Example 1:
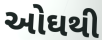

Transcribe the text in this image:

ઓઘથી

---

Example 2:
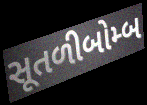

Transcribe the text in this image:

સૂતળીબોમ્બ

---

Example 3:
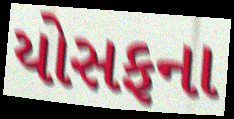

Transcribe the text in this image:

યોસફના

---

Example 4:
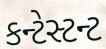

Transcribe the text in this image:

કન્ટેસ્ટન્ટ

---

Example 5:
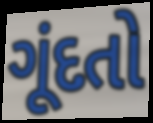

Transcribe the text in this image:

ગૂંદતો